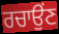
ਰਚਾਉਂਣ